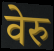
वेरु